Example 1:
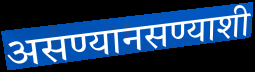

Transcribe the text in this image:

असण्यानसण्याशी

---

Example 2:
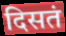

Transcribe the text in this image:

दिसतं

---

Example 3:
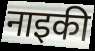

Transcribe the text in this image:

नाइकी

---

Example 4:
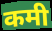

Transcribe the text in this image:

कमी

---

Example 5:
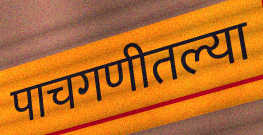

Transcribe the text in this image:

पाचगणीतल्या